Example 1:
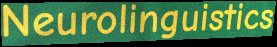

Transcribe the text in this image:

Neurolinguistics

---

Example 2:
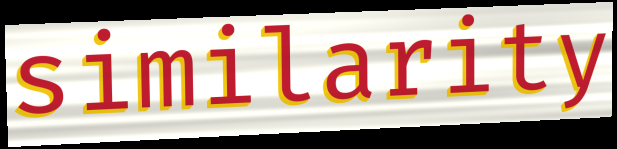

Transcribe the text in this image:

similarity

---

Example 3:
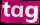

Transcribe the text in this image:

tag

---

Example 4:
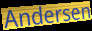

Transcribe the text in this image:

Andersen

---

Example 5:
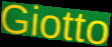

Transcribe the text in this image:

Giotto